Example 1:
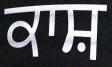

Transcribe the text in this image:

ਕਾਸ਼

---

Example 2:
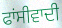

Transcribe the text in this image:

ਫਾਂਸੀਵਾਦੀ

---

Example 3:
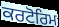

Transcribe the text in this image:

ਕਰਟੋਰਿਮ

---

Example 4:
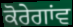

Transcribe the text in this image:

ਕੋਰੇਗਾਂਵ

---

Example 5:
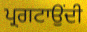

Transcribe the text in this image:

ਪ੍ਰਗਟਾਉਂਦੀ